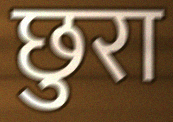
छुरा